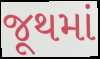
જૂથમાં